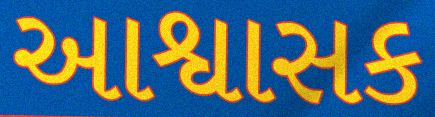
આશ્વાસક